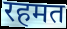
रहमत